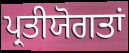
ਪ੍ਰਤੀਯੋਗਤਾਂ